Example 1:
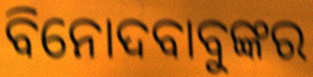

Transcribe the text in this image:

ବିନୋଦବାବୁଙ୍କର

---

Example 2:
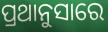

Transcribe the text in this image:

ପ୍ରଥାନୁସାରେ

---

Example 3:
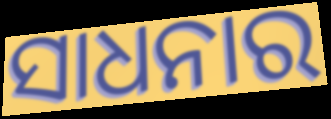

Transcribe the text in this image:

ସାଧନାର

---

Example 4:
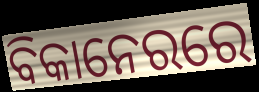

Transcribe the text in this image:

ବିକାନେରରେ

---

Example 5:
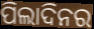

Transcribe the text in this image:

ପିଲାଦିନର